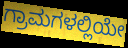
ಗ್ರಾಮಗಳಲ್ಲಿಯೇ